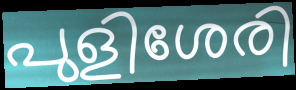
പുളിശേരി